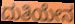
ದುತಿಯೇನ